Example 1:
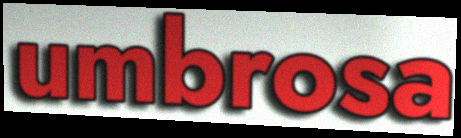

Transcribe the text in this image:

umbrosa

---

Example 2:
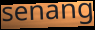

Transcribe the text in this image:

senang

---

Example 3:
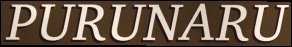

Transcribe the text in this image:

PURUNARU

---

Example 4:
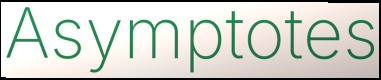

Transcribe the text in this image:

Asymptotes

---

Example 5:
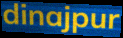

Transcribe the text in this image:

dinajpur